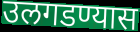
उलगडण्यास